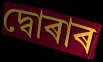
দ্বোৰাৰ